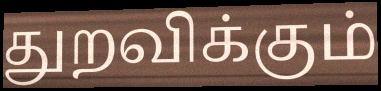
துறவிக்கும்